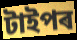
টাইপৰ